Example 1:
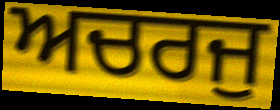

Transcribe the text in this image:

ਅਚਰਜੁ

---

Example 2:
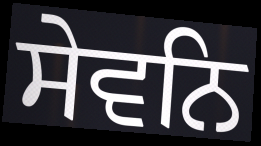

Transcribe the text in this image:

ਸੇਵਨਿ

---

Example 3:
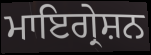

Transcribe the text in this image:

ਮਾਇਗ੍ਰੇਸ਼ਨ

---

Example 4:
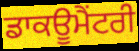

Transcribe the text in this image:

ਡਾਕਊਮੈਂਟਰੀ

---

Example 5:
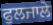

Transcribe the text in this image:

ਫੁਲਜਾਲੇ